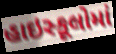
હાઇસ્કૂલોમાં